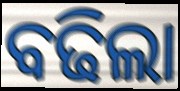
ବଢିଲା